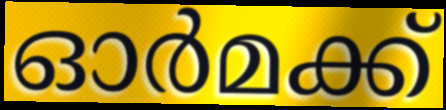
ഓർമക്ക്